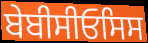
ਬੇਬੀਸੀਓਸਿਸ